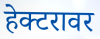
हेक्टरावर